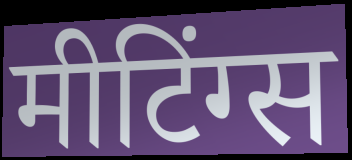
मीटिंग्स